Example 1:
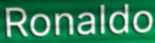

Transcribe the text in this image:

Ronaldo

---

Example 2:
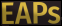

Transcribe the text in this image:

EAPs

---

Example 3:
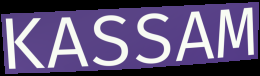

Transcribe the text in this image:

KASSAM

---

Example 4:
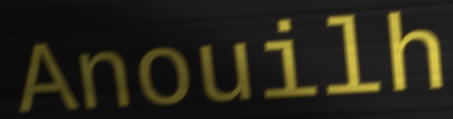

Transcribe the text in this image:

Anouilh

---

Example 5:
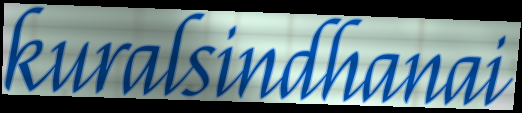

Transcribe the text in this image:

kuralsindhanai